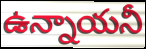
ఉన్నాయనీ